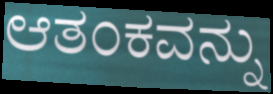
ಆತಂಕವನ್ನು